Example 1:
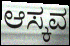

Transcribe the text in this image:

ಆಸ್ಕವ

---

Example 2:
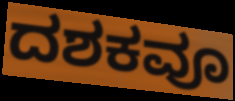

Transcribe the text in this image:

ದಶಕವೂ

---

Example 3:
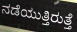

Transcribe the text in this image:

ನಡೆಯುತ್ತಿರುತ್ತೆ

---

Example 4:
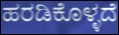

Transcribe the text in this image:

ಹರಡಿಕೊಳ್ಳದೆ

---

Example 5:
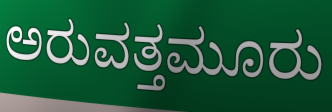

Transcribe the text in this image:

ಅರುವತ್ತಮೂರು